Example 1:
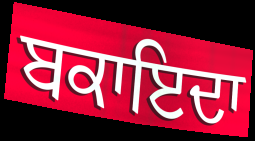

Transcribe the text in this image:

ਬਕਾਇਦਾ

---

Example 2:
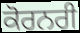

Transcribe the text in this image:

ਕੋਰਨਰੀ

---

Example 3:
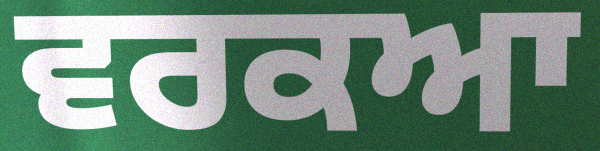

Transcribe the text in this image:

ਵਰਕਆ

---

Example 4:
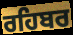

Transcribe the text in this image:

ਰਹਿਬਰ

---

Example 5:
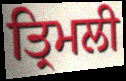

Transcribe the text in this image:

ਤ੍ਰਿਮਲੀ